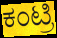
ಕಂಟ್ರಿ